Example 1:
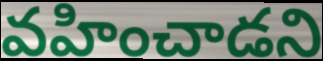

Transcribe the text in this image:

వహించాడని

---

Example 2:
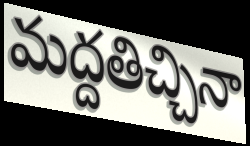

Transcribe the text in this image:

మద్దతిచ్చినా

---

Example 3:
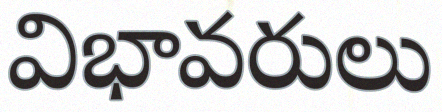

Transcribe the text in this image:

విభావరులు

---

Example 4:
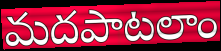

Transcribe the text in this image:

మదపాటలాం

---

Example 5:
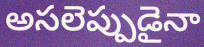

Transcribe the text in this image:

అసలెప్పుడైనా